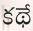
కథే